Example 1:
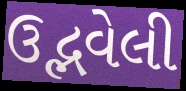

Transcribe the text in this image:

ઉદ્ભવેલી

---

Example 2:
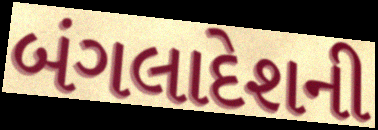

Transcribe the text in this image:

બંગલાદેશની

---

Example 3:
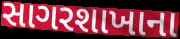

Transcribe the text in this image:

સાગરશાખાના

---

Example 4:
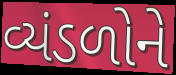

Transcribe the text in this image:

વ્યંડળોને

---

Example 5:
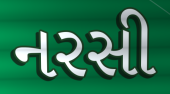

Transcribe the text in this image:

નરસી